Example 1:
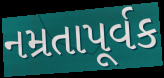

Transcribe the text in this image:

નમ્રતાપૂર્વક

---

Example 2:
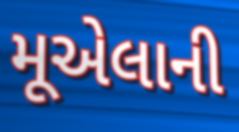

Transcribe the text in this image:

મૂએલાની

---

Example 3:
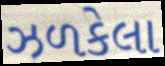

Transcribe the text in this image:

ઝળકેલા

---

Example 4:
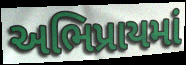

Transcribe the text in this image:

અભિપ્રાયમાં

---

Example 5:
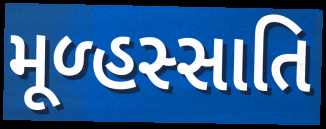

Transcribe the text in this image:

મૂળ્હસ્સાતિ